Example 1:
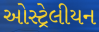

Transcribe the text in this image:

ઓસ્ટ્રેલીયન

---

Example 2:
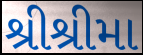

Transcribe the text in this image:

શ્રીશ્રીમા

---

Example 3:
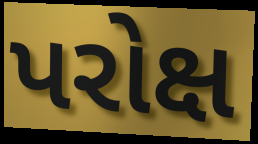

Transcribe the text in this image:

પરોક્ષ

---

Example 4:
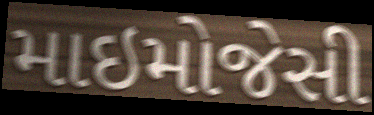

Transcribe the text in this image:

માઇમોજેસી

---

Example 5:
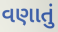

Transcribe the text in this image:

વણાતું